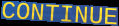
CONTINUE